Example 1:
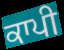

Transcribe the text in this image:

ਕਾਪੀ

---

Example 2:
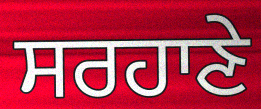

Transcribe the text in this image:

ਸਰਹਾਣੇ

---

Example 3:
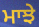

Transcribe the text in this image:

ਮਾਝੇ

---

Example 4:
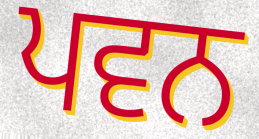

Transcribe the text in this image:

ਪਵਨ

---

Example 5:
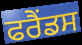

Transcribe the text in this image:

ਫਰੈਂਡਸ